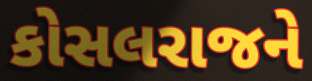
કોસલરાજને